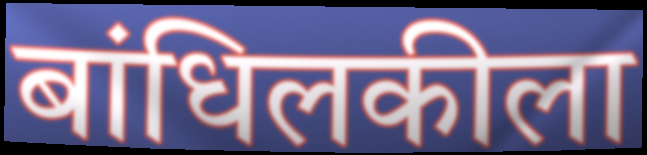
बांधिलकीला